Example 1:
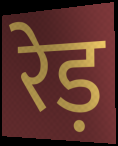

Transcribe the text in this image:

रेड़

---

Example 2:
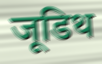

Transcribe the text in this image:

जूडिथ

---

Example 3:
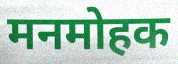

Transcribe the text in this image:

मनमोहक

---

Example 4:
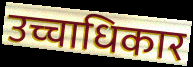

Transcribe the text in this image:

उच्‍चाधिकार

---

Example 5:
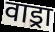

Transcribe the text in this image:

वाड्रा